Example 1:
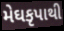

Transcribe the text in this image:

મેઘકૃપાથી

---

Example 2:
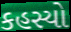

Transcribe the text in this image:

કહસ્યો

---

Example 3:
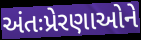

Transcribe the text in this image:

અંતઃપ્રેરણાઓને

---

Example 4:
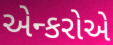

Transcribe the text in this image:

એન્કરોએ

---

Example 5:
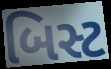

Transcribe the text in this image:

બિસ્ટ